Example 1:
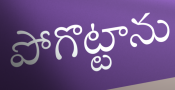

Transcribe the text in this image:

పోగొట్టాను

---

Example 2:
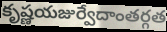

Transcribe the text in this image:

కృష్ణయజుర్వేదాంతర్గత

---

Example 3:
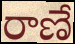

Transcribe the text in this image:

రాణే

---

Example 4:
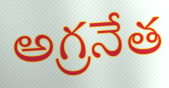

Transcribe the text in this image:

అగ్రనేత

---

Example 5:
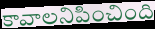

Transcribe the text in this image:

కావాలనిపించింది